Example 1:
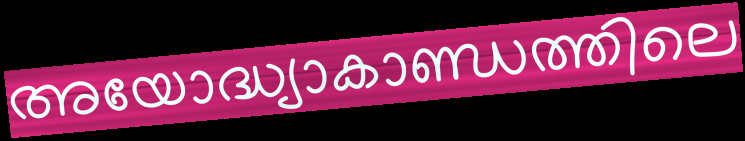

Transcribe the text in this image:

അയോദ്ധ്യാകാണ്ഡത്തിലെ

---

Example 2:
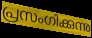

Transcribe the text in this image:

പ്രസംഗിക്കുന്നു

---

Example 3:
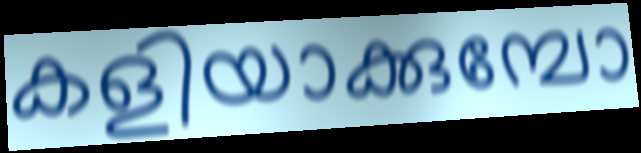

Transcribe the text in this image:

കളിയാക്കുമ്പോ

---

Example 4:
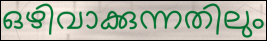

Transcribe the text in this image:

ഒഴിവാക്കുന്നതിലും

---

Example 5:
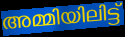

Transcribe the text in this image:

അമ്മിയിലിട്ട്